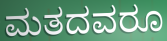
ಮತದವರೂ